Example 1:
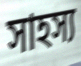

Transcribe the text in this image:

সাহস্য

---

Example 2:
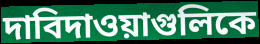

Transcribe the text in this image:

দাবিদাওয়াগুলিকে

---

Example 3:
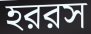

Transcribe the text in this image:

হররস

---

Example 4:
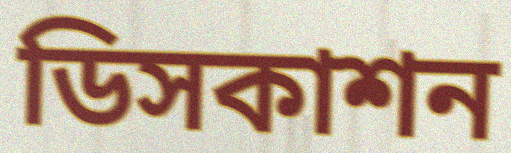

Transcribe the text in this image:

ডিসকাশন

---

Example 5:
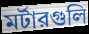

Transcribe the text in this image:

মর্টারগুলি